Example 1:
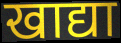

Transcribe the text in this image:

खाद्या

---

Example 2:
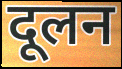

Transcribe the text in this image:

दूलन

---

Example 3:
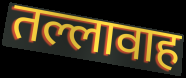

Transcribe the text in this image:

तल्लावाह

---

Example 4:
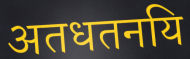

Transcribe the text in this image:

अतधतनयि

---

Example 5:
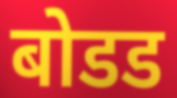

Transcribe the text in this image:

बोडड